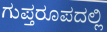
ಗುಪ್ತರೂಪದಲ್ಲಿ